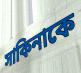
সাকিনাকে